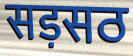
सड़सठ